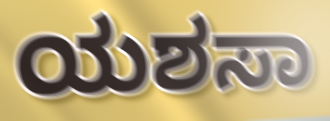
ಯಶಸಾ